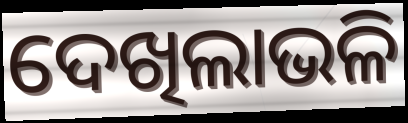
ଦେଖିଲାଭଳି